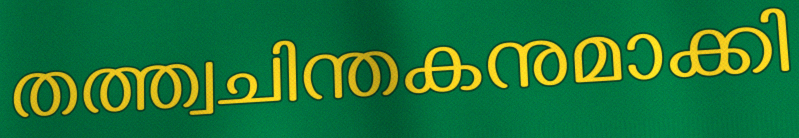
തത്ത്വചിന്തകനുമാക്കി